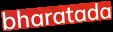
bharatada